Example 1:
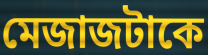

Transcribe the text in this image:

মেজাজটাকে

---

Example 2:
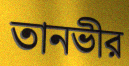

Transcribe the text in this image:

তানভীর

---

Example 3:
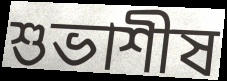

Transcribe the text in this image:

শুভাশীষ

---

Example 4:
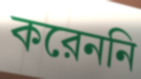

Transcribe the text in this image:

করেননি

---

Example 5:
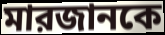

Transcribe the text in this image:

মারজানকে